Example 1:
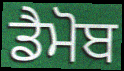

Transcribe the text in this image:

ਡੈਮੋਬ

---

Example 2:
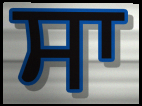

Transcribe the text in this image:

ਸਾ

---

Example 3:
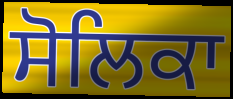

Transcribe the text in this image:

ਸੋਲਿਕਾ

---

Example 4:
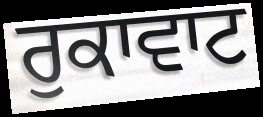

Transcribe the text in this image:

ਰੁਕਾਵਾਟ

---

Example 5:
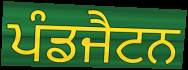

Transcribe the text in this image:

ਪੰਡਜੈਟਨ